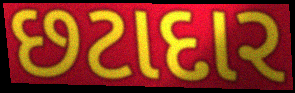
છટાદાર